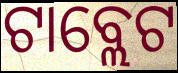
ଟାବ୍ଲେଟ